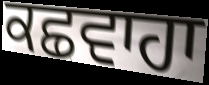
ਕਛਵਾਹਾ